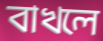
বাখলে